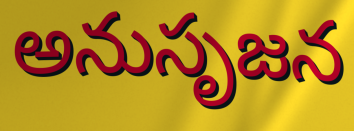
అనుసృజన